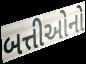
બત્તીઓનો